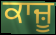
ਕਾਜ਼ੂ